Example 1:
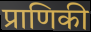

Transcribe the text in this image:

प्राणिकी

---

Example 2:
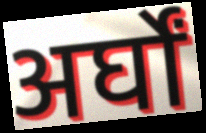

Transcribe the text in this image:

अर्घों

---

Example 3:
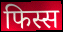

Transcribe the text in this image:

फिस्स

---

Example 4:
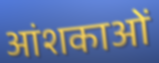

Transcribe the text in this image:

आंशकाओं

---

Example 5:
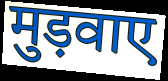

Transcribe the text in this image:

मुड़वाए